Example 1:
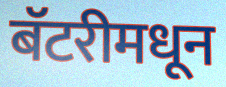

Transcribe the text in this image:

बॅटरीमधून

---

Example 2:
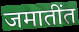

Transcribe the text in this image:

जमातींत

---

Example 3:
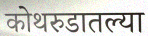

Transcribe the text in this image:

कोथरुडातल्या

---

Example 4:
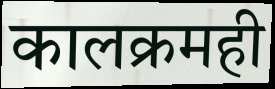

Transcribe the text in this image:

कालक्रमही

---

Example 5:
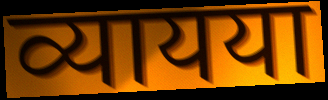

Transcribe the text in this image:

व्यायया